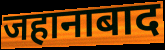
जहानाबाद